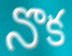
నొక